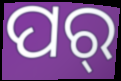
ପର୍